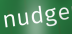
nudge